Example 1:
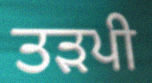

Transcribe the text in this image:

ਤੜਪੀ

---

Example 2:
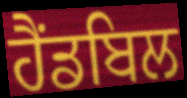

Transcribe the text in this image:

ਹੈਂਡਬਿਲ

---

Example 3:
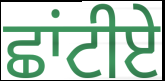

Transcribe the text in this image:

ਛਾਂਟੀਏ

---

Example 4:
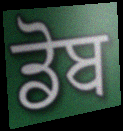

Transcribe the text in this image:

ਡੋਬ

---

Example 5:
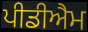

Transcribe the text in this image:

ਪੀਡੀਐਮ